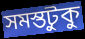
সমস্তটুকু